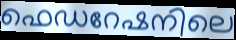
ഫെഡറേഷനിലെ